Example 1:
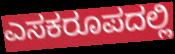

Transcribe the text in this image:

ಎಸಕರೂಪದಲ್ಲಿ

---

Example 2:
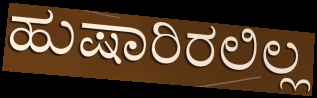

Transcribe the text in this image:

ಹುಷಾರಿರಲಿಲ್ಲ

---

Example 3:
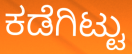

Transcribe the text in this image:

ಕಡೆಗಿಟ್ಟು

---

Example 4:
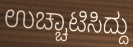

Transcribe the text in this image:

ಉಚ್ಚಾಟಿಸಿದ್ದು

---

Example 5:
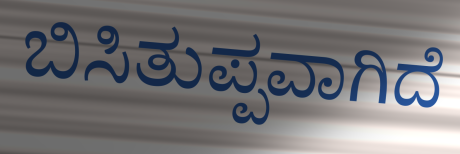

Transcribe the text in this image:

ಬಿಸಿತುಪ್ಪವಾಗಿದೆ